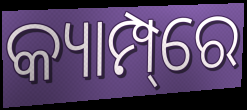
କ୍ୟାମ୍ପ୍‌ରେ